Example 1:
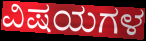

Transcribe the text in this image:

ವಿಷಯಗಳ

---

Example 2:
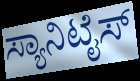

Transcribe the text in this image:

ಸ್ಯಾನಿಟೈಸ್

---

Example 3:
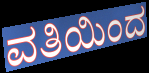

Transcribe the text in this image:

ವತಿಯಿಂದ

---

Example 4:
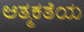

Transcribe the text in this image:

ಆತ್ಮಕತೆಯ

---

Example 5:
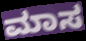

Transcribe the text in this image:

ಮಾಸ